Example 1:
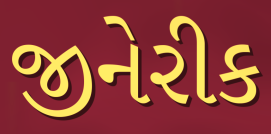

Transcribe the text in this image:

જીનેરીક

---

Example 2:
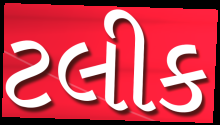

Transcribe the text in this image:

ટલીક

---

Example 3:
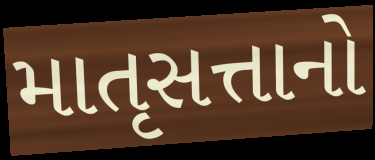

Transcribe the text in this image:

માતૃસત્તાનો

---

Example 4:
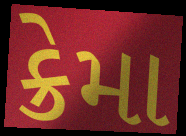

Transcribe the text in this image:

ક્રેમા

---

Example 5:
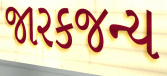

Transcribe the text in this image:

જારકજન્ય